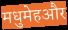
मधुमेहऔर